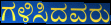
ಗಳಿಸಿದವರು